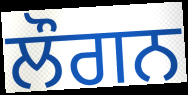
ਲੌਗਨ